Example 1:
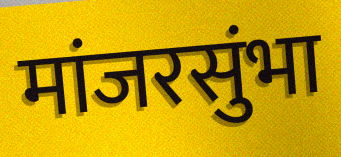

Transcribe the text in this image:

मांजरसुंभा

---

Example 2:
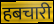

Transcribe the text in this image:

हबचारी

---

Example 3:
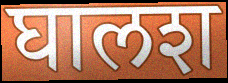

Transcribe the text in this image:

घालश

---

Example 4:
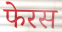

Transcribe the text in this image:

फेरस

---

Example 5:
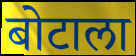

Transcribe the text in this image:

बोटाला